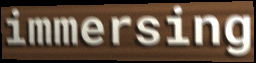
immersing